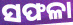
ସଫଳା